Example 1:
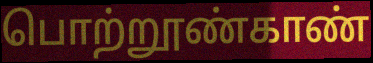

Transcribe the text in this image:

பொற்றூண்காண்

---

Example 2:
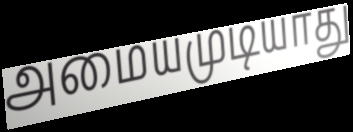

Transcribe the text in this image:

அமையமுடியாது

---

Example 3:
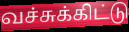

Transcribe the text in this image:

வச்சுக்கிட்டு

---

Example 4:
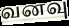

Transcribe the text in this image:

வனவு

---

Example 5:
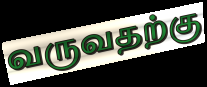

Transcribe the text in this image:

வருவதற்கு